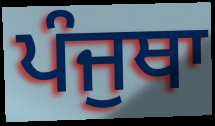
ਪੰਜੁਥਾ